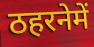
ठहरनेमें